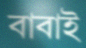
বাবাই